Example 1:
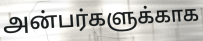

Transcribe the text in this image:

அன்பர்களுக்காக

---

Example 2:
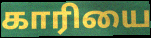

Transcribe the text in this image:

காரியை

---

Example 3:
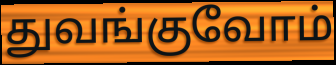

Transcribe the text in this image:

துவங்குவோம்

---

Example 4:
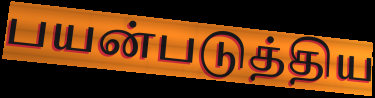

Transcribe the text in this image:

பயன்படுத்திய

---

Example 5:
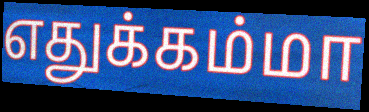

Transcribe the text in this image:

எதுக்கம்மா